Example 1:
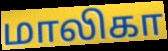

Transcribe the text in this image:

மாலிகா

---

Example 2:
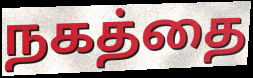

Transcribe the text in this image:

நகத்தை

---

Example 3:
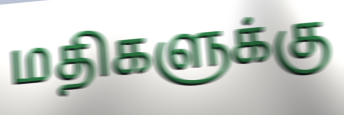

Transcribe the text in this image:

மதிகளுக்கு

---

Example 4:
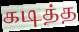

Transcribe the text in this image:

கடித்த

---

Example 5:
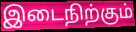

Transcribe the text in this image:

இடைநிற்கும்